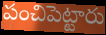
పంచిపెట్టారు